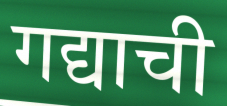
गद्याची